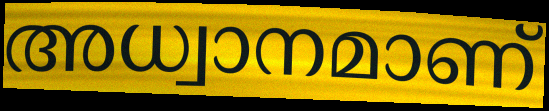
അധ്വാനമാണ്